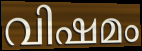
വിഷമം